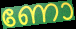
ണോ